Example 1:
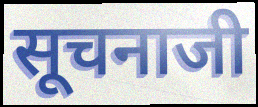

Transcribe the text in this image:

सूचनाजी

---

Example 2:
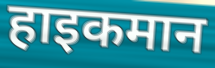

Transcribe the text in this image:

हाइकमान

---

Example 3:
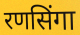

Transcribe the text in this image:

रणसिंगा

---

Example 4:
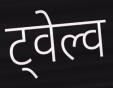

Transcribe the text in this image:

ट्वेल्व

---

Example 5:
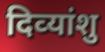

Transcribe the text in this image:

दिव्‍यांशु